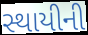
સ્થાયીની